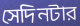
সেদিনটার